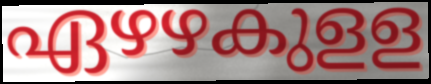
ഏഴഴകുളള